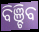
ବିଞ୍ଚିବ